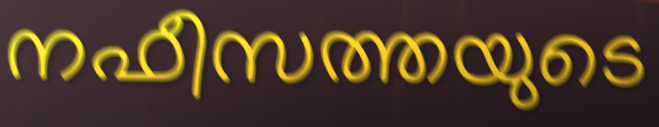
നഫീസത്തയുടെ